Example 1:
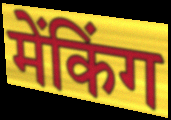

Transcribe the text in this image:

मेंकिंग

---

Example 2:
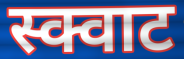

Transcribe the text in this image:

स्क्वाट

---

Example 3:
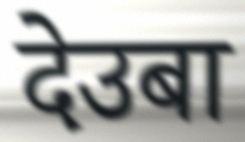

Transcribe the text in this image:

देउबा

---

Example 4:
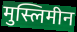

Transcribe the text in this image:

मुस्लिमीन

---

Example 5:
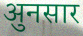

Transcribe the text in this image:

अुनसार